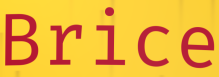
Brice